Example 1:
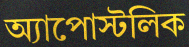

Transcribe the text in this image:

অ্যাপোস্টলিক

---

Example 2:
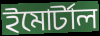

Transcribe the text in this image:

ইমোর্টাল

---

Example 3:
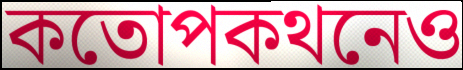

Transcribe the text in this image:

কতোপকথনেও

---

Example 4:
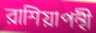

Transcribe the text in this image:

রাশিয়াপন্থী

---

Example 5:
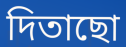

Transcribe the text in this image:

দিতাছো